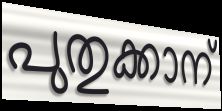
പുതുക്കാന്